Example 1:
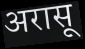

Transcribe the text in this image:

अरासू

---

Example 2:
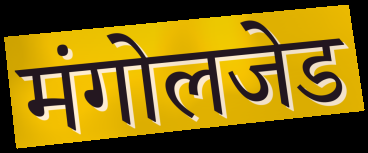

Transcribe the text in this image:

मंगोलजेड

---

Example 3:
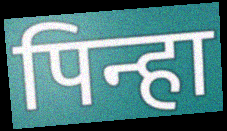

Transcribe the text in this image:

पिन्हा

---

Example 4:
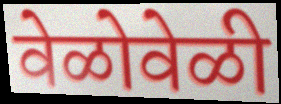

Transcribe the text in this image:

वेळोवेळी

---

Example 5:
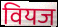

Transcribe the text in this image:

वियज